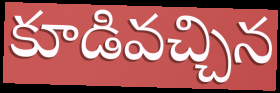
కూడివచ్చిన